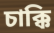
চাক্কি